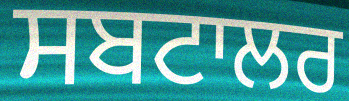
ਸਬਟਾਲਰ